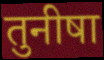
तुनीषा